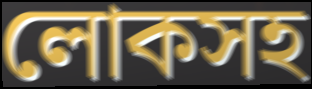
লোকসহ